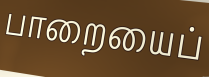
பாறையைப்